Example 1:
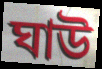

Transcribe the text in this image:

ঘাউ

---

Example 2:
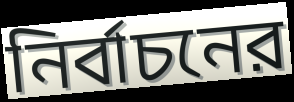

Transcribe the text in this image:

নির্বাচনের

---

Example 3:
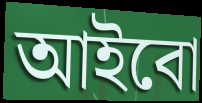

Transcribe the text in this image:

আইবো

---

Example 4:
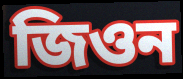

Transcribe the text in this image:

জিওন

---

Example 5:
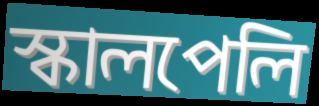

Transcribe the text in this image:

স্কালপেলি